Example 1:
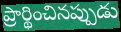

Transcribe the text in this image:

ప్రార్థించినప్పుడు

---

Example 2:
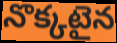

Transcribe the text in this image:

నొక్కటైన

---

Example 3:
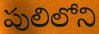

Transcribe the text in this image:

పులిలోని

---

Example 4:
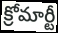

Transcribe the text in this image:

క్రోమార్టీ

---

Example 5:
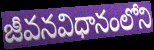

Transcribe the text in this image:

జీవనవిధానంలోని